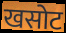
खसोट